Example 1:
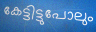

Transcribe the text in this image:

കേട്ടിട്ടുപോലും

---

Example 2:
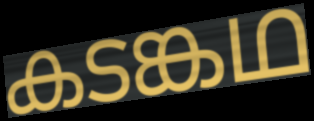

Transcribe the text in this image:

കടങ്കഥ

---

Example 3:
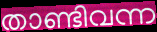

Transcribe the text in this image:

താണ്ടിവന്ന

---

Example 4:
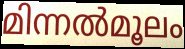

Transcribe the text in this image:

മിന്നൽമൂലം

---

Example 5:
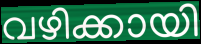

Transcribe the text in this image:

വഴിക്കായി